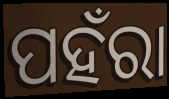
ପହଁରା